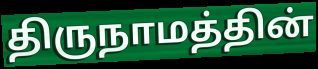
திருநாமத்தின்